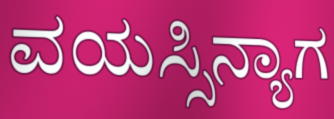
ವಯಸ್ಸಿನ್ಯಾಗ